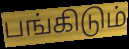
பங்கிடும்